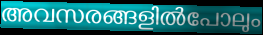
അവസരങ്ങളിൽപോലും